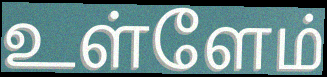
உள்ளேம்